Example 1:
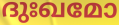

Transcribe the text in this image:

ദുഃഖമോ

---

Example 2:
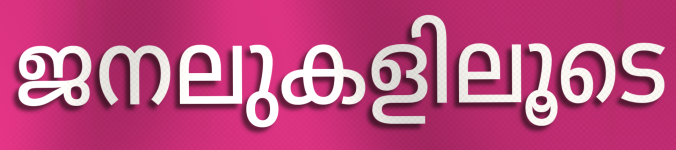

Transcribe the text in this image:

ജനലുകളിലൂടെ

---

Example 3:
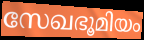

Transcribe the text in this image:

സേഖഭൂമിയം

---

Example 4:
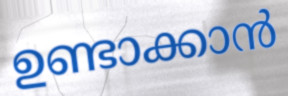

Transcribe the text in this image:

ഉണ്ടാക്കാൻ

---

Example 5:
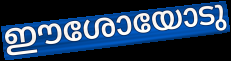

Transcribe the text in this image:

ഈശോയോടു